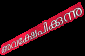
അവക്ഷേപിക്കുന്നു